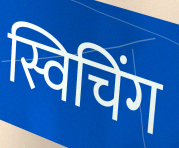
स्विचिंग